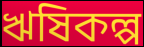
ঋষিকল্প